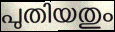
പുതിയതും